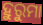
ହୁରୁମା